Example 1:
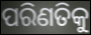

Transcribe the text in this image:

ପରିଣତିକୁ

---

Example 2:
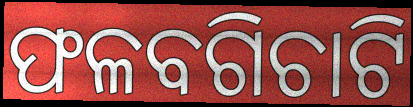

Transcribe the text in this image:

ଫଳବଗିଚାଟି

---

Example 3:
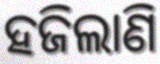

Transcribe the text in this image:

ହଜିଲାଣି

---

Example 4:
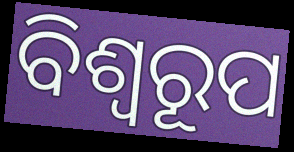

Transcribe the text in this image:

ବିଶ୍ଵରୂପ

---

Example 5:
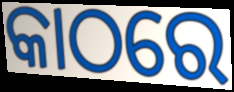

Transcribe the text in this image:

କାଠରେ